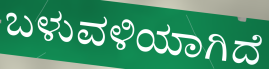
ಬಳುವಳಿಯಾಗಿದೆ